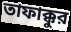
তাফাক্কুর